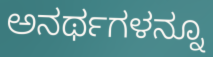
ಅನರ್ಥಗಳನ್ನೂ